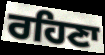
ਰਹਿਣਾ